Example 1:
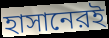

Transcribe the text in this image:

হাসানেরই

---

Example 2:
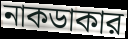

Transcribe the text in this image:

নাকডাকার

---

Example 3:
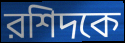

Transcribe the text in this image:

রশিদকে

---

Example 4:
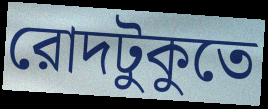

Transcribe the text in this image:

রোদটুকুতে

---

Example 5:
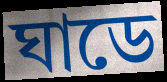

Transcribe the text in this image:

ঘাডে